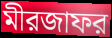
মীরজাফর